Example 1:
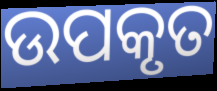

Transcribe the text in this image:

ଉପକୃତ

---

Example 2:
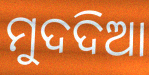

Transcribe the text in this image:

ମୁଦଦିଆ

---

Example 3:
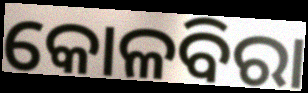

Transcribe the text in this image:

କୋଳବିରା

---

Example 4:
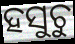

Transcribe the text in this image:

ହସୁଚୁ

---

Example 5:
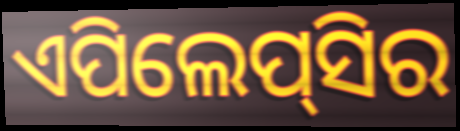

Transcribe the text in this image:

ଏପିଲେପ୍‌ସିର